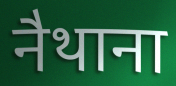
नैथाना